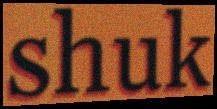
shuk